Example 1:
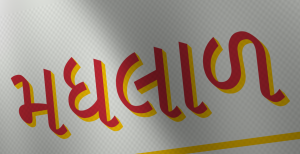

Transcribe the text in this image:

મધલાળ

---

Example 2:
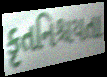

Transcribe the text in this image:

કૃતનિશ્ચયતા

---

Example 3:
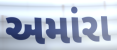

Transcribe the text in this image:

અમાંરા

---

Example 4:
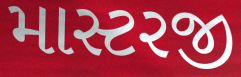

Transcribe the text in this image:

માસ્ટરજી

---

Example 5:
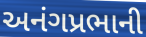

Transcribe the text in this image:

અનંગપ્રભાની